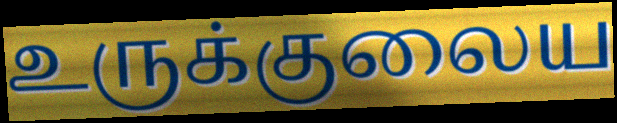
உருக்குலைய